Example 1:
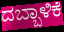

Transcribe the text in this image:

ದಬ್ಬಾಳಿಕೆ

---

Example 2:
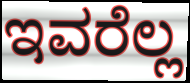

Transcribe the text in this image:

ಇವರೆಲ್ಲ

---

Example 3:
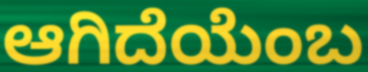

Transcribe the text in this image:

ಆಗಿದೆಯೆಂಬ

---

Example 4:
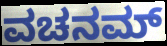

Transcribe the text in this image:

ವಚನಮ್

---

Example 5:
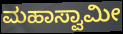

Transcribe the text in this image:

ಮಹಾಸ್ವಾಮೀ